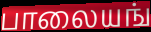
பாலையங்